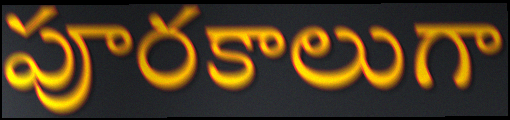
పూరకాలుగా